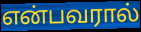
என்பவரால்